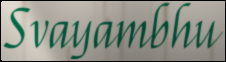
Svayambhu